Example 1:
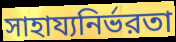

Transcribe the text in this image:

সাহায্যনির্ভরতা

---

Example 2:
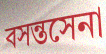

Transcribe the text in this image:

বসন্তসেনা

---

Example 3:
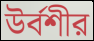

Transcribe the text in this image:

উর্বশীর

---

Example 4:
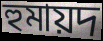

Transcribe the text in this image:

হুমায়দ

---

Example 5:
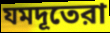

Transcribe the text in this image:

যমদূতেরা